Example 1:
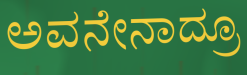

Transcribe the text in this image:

ಅವನೇನಾದ್ರೂ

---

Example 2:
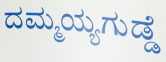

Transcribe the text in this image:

ದಮ್ಮಯ್ಯಗುಡ್ಡೆ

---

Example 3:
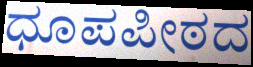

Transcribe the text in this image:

ಧೂಪಪೀಠದ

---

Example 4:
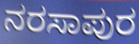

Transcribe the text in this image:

ನರಸಾಪುರ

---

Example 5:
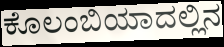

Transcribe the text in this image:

ಕೊಲಂಬಿಯಾದಲ್ಲಿನ